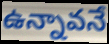
ఉన్నావనే